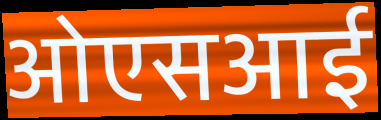
ओएसआई